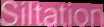
Siltation